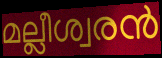
മല്ലീശ്വരൻ